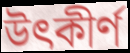
উৎকীর্ণ